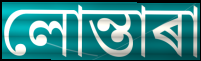
লোন্তাৰা